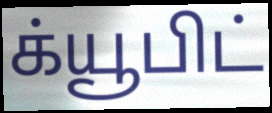
க்யூபிட்